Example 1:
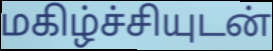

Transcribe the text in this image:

மகிழ்ச்சியுடன்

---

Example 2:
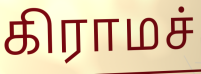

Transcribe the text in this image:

கிராமச்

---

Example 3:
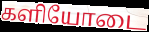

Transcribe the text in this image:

களியோடை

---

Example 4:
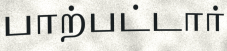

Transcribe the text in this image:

பாற்பட்டார்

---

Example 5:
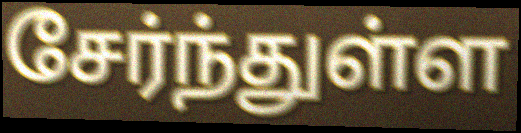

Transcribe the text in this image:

சேர்ந்துள்ள